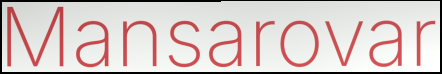
Mansarovar